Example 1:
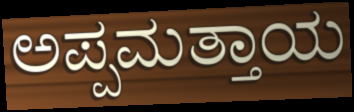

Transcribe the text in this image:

ಅಪ್ಪಮತ್ತಾಯ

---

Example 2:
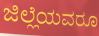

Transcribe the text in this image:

ಜಿಲ್ಲೆಯವರೂ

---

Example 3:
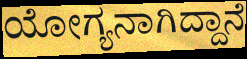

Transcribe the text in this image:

ಯೋಗ್ಯನಾಗಿದ್ದಾನೆ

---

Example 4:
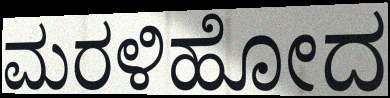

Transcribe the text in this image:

ಮರಳಿಹೋದ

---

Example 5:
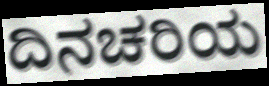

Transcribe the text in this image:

ದಿನಚರಿಯ